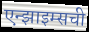
एन्झाइम्सची